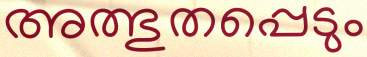
അത്ഭുതപ്പെടും